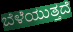
ಬೆಳೆಯುತ್ತದೆ